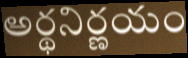
అర్థనిర్ణయం